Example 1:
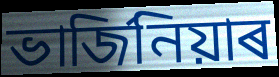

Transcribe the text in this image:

ভাৰ্জিনিয়াৰ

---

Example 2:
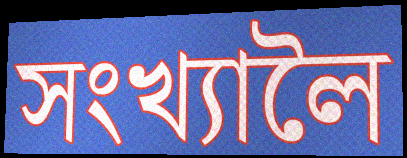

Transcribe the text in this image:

সংখ্যালৈ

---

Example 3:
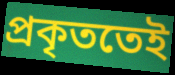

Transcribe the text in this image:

প্ৰকৃততেই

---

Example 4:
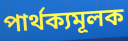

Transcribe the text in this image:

পাৰ্থক্যমূলক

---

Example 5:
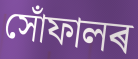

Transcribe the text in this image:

সোঁফালৰ